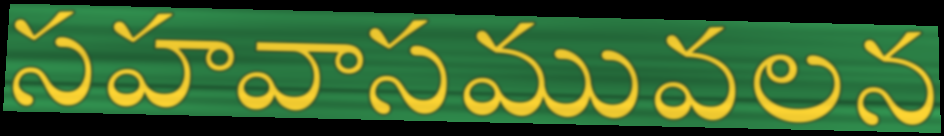
సహవాసమువలన